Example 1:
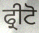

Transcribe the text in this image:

ਫ੍ਰੀਟੋ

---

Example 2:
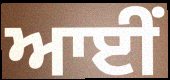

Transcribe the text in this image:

ਆਈਂ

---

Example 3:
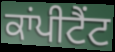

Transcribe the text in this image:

ਕਾਂਪੀਟੈਂਟ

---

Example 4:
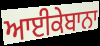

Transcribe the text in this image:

ਆਈਕੇਬਾਨਾ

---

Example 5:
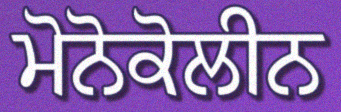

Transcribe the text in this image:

ਮੋਨੋਕੋਲੀਨ